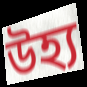
উহ্য